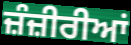
ਜ਼ੰਜ਼ੀਰੀਆਂ